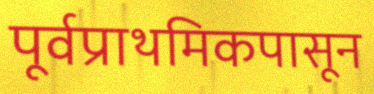
पूर्वप्राथमिकपासून